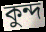
কুন্দ